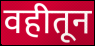
वहीतून